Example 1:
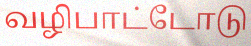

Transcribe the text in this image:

வழிபாட்டோடு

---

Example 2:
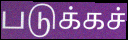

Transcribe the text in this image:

படுக்கச்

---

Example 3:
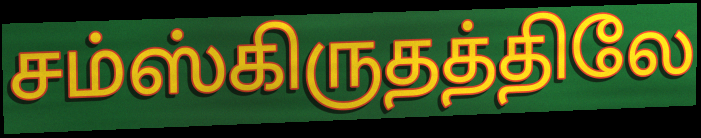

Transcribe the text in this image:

சம்ஸ்கிருதத்திலே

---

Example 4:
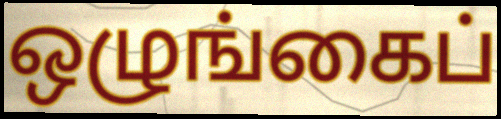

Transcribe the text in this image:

ஒழுங்கைப்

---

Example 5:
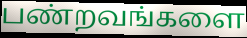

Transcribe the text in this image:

பண்றவங்களை